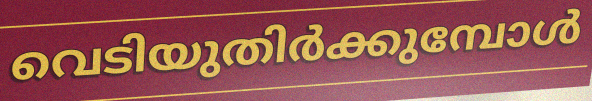
വെടിയുതിർക്കുമ്പോൾ